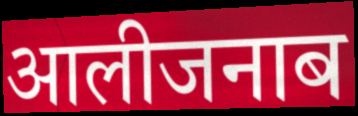
आलीजनाब